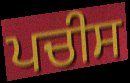
ਪਚੀਸ